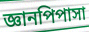
জ্ঞানপিপাসা